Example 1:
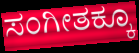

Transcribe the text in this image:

ಸಂಗೀತಕ್ಕೂ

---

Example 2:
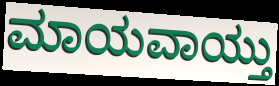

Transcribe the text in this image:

ಮಾಯವಾಯ್ತು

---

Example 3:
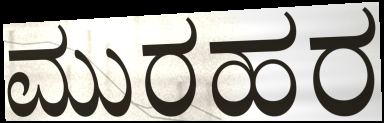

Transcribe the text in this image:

ಮುರಹರ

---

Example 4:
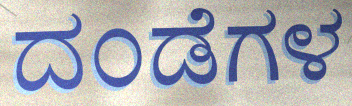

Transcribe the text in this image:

ದಂಡೆಗಳ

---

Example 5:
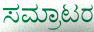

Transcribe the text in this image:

ಸಮ್ರಾಟರ